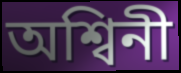
অশ্বিনী